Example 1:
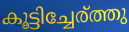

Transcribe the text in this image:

കൂട്ടിച്ചേര്ത്തു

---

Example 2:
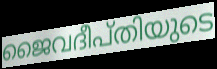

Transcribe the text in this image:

ജൈവദീപ്തിയുടെ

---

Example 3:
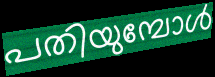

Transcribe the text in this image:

പതിയുമ്പോൾ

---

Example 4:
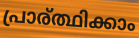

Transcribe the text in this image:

പ്രാര്ത്ഥിക്കാം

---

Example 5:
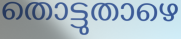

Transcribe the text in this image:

തൊട്ടുതാഴെ